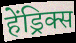
हेंड्रिक्स